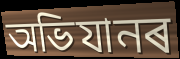
অভিযানৰ